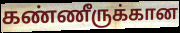
கண்ணீருக்கான